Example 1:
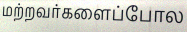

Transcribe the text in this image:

மற்றவர்களைப்போல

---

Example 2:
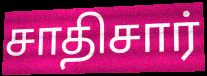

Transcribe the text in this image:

சாதிசார்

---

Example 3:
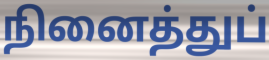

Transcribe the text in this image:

நினைத்துப்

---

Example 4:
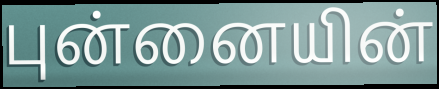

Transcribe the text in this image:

புன்னையின்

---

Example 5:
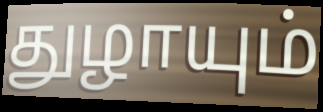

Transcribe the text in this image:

துழாயும்